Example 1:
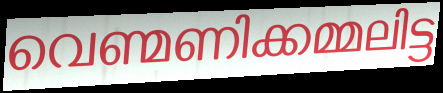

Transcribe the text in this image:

വെണ്മണിക്കമ്മലിട്ട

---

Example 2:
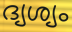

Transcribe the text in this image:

ദ്യശ്യം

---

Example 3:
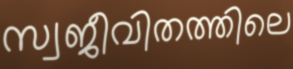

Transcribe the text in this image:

സ്വജീവിതത്തിലെ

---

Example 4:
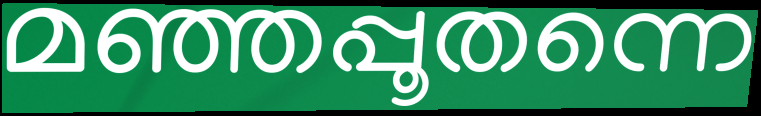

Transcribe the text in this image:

മഞ്ഞപ്പൂതന്നെ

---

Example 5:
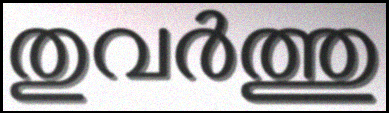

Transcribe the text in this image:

തുവർത്തു